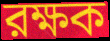
রক্ষক